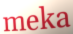
meka